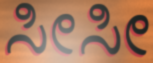
ಸೀಸೀ